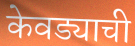
केवड्याची